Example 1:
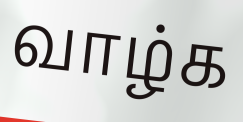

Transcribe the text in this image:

வாழ்க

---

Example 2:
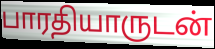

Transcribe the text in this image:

பாரதியாருடன்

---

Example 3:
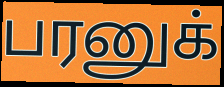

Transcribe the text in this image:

பரனுக்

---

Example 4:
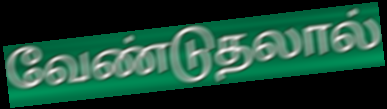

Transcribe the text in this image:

வேண்டுதலால்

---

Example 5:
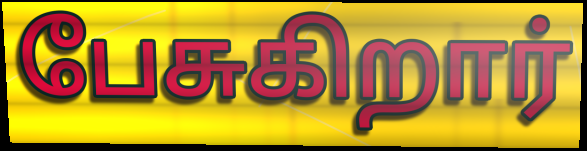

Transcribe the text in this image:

பேசுகிறார்